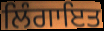
ਲਿੰਗਾਇਤ